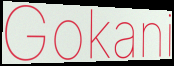
Gokani